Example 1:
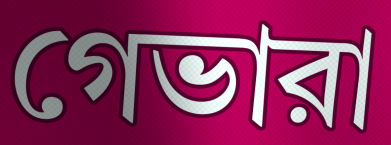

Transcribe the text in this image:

গেভারা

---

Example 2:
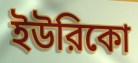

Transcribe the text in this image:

ইউরিকো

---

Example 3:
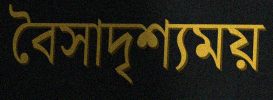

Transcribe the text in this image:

বৈসাদৃশ্যময়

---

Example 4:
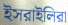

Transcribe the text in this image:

ইসরাইলিরা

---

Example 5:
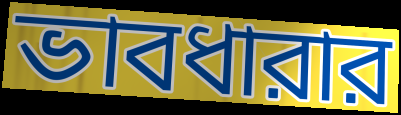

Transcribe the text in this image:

ভাবধারার